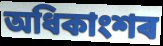
অধিকাংশৰ